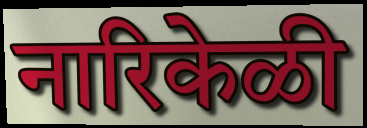
नारिकेळी